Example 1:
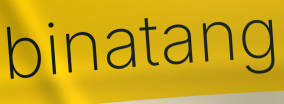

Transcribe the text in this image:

binatang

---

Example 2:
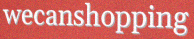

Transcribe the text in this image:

wecanshopping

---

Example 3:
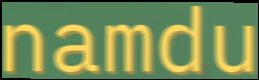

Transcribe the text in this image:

namdu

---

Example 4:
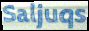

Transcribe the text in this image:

Saljuqs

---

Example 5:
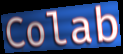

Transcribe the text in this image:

Colab